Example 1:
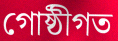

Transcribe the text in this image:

গোষ্ঠীগত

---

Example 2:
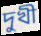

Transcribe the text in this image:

দুখী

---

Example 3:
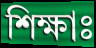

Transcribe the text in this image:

শিক্ষাঃ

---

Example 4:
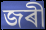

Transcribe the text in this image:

জৰী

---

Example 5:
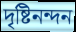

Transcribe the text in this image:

দৃষ্টিনন্দন